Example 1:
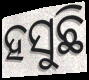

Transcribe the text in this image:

ହସୁଛି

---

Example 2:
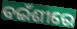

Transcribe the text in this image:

ବଇଁଶୀରେ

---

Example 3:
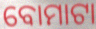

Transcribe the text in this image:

ବୋମାଟା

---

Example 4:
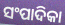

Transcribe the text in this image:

ସଂପାଦିକା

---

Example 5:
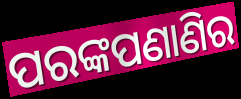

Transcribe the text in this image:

ପରଙ୍କପଣାଣିର